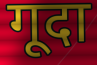
गूदा